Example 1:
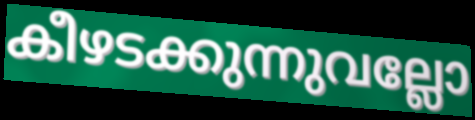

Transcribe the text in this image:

കീഴടക്കുന്നുവല്ലോ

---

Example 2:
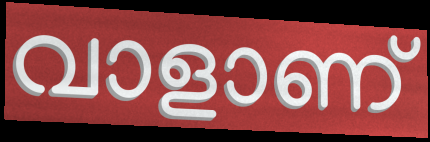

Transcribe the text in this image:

വാളാണ്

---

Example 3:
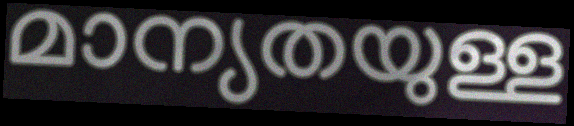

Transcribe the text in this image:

മാന്യതയുള്ള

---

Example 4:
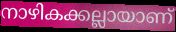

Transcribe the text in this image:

നാഴികക്കല്ലായാണ്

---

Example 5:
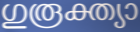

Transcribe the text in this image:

ഗുരൂക്ത്യാ